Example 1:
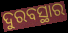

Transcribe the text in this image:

ଦୁରବସ୍ଥାର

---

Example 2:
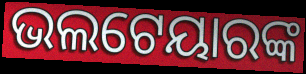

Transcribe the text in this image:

ଭଲଟେୟାରଙ୍କ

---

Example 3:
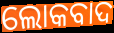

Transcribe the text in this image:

ଲୋକବାଦ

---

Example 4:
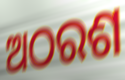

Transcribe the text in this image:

ଅଠରଶ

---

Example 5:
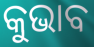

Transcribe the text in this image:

କୁଭାବ